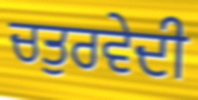
ਚਤੁਰਵੇਦੀ